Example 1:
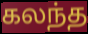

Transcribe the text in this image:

கலந்த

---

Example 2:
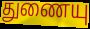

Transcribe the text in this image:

துணையு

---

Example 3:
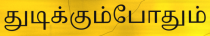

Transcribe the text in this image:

துடிக்கும்போதும்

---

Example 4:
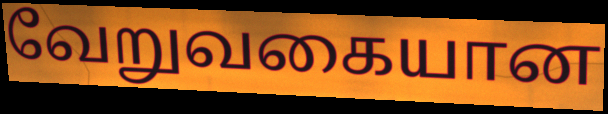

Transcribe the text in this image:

வேறுவகையான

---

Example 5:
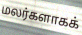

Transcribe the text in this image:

மலர்களாகக்